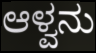
ಆಳ್ವನು